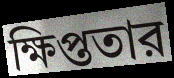
ক্ষিপ্ততার